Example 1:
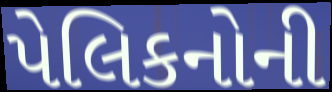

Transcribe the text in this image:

પેલિકનોની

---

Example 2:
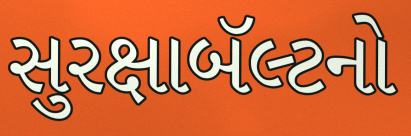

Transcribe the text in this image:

સુરક્ષાબૅલ્ટનો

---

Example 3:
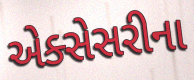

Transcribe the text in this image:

એક્સેસરીના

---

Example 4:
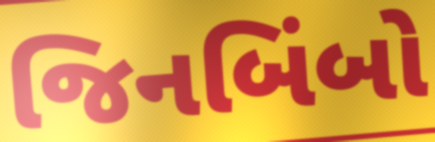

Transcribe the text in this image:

જિનબિંબો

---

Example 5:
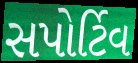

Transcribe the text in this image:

સપોર્ટિવ